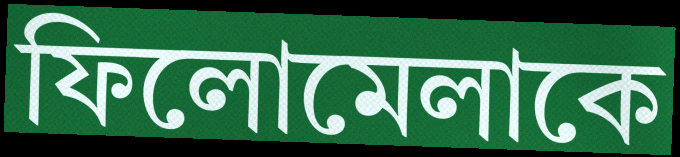
ফিলোমেলাকে